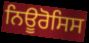
ਨਿਊਰੋਸਿਸ